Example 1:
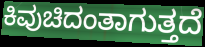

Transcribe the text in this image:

ಕಿವುಚಿದಂತಾಗುತ್ತದೆ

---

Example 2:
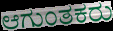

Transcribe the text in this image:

ಆಗುಂತಕರು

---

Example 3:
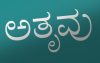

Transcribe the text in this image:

ಅತೃವು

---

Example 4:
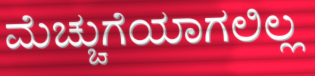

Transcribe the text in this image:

ಮೆಚ್ಚುಗೆಯಾಗಲಿಲ್ಲ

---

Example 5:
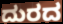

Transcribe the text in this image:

ದುರದ